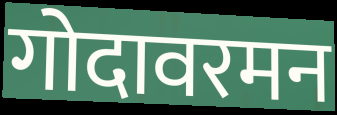
गोदावरमन